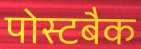
पोस्टबैक